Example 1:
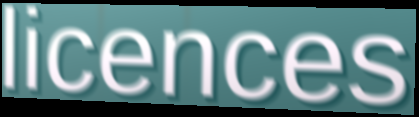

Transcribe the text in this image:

licences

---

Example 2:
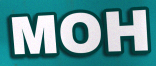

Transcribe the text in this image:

MOH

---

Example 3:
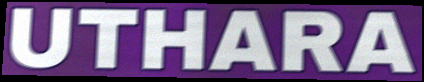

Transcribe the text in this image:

UTHARA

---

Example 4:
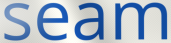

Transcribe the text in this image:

seam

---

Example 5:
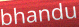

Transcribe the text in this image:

bhandu